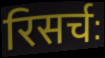
रिसर्चः